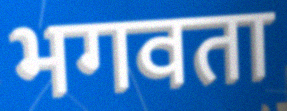
भगवता